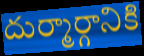
దుర్మార్గానికి